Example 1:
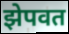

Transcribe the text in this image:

झेपवत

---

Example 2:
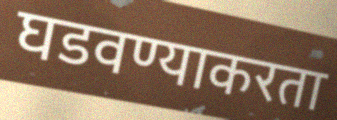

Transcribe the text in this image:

घडवण्याकरता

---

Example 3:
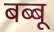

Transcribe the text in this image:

बब्बू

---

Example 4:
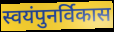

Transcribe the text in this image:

स्वयंपुनर्विकास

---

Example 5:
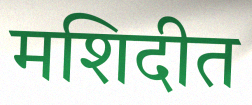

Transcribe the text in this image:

मशिदीत